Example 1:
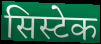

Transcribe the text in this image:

सिस्टेक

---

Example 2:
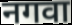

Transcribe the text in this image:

नगवा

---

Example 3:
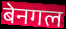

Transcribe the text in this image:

बेनगल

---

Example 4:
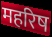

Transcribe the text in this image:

महरिष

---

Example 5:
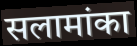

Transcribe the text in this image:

सलामांका